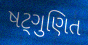
ષટ્ગુણિત